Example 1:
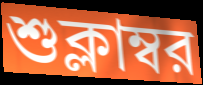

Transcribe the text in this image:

শুক্লাম্বর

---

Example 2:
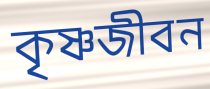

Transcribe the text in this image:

কৃষ্ণজীবন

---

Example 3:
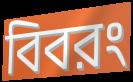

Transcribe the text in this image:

বিবরং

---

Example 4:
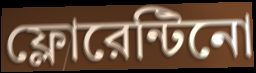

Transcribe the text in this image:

ফ্লোরেন্টিনো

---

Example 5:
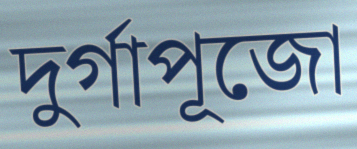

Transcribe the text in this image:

দুর্গাপূজো